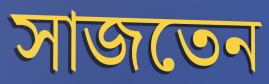
সাজতেন